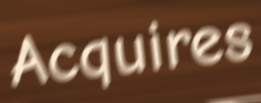
Acquires